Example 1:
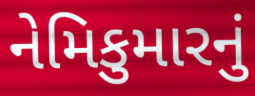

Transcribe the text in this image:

નેમિકુમારનું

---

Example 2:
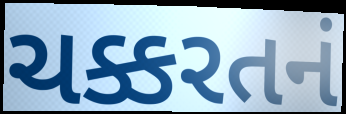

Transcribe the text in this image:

ચક્કરતનં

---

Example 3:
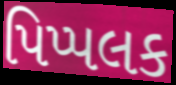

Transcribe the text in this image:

પિપ્પલક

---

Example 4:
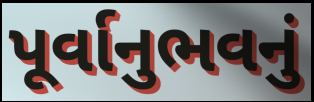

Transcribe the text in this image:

પૂર્વાનુભવનું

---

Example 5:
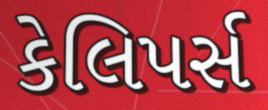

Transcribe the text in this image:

કેલિપર્સ